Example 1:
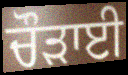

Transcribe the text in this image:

ਚੌੜਾਈ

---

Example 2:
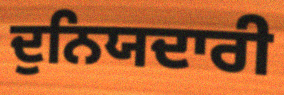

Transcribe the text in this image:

ਦੁਨਿਯਦਾਰੀ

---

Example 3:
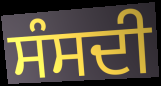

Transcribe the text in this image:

ਸੰਸਦੀ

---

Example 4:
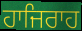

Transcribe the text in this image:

ਹਾਜਿਰਾਹ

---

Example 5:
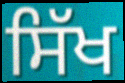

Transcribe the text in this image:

ਸਿੱਖ